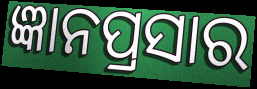
ଜ୍ଞାନପ୍ରସାର